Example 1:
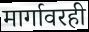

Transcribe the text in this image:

मार्गावरही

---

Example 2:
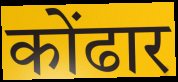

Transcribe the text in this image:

कोंढार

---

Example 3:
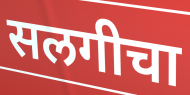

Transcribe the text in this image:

सलगीचा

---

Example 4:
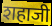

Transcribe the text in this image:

शहाजी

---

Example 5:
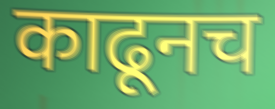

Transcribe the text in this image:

काढूनच